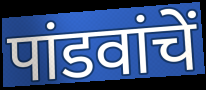
पांडवांचें